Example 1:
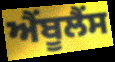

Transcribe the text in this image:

ਐੰਬੂਲੈਂਸ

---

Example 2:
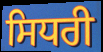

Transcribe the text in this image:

ਸਿਧਰੀ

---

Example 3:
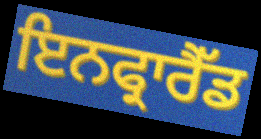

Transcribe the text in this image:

ਇਨਫ੍ਰਾਰੈੱਡ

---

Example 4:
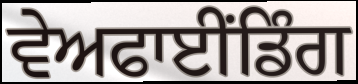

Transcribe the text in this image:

ਵੇਅਫਾਈਂਡਿੰਗ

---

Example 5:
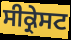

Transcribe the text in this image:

ਸੀਕ੍ਰੇਸਟ